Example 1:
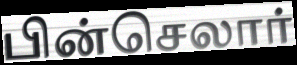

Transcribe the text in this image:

பின்செலார்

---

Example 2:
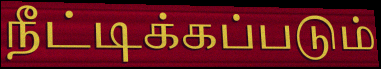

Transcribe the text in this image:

நீட்டிக்கப்படும்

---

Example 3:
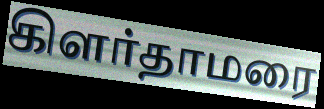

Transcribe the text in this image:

கிளர்தாமரை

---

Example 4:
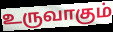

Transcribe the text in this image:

உருவாகும்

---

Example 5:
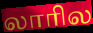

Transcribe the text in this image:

லாரில